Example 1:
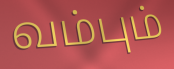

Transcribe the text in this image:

வம்பும்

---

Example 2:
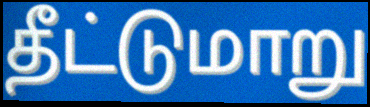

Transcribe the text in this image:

தீட்டுமாறு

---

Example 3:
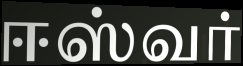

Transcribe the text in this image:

ஈஸ்வர்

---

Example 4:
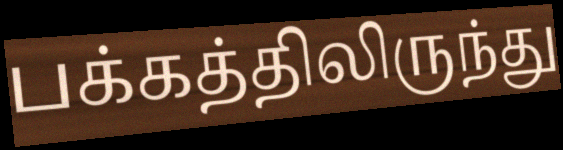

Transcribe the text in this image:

பக்கத்திலிருந்து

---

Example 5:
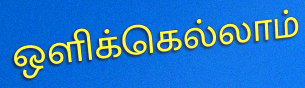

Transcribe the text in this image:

ஒளிக்கெல்லாம்